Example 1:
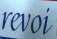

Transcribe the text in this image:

revoi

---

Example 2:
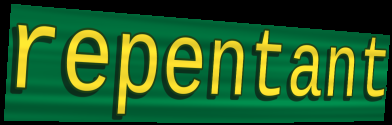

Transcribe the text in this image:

repentant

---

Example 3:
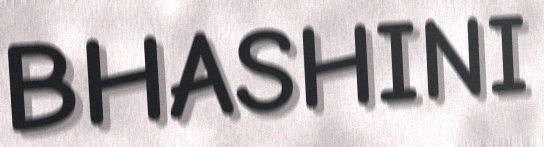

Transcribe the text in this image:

BHASHINI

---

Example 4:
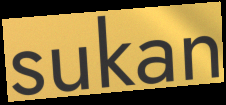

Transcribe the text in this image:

sukan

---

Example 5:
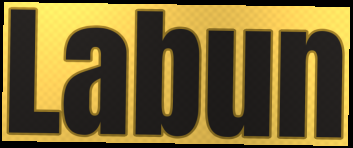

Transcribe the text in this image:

Labun